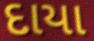
દાયા